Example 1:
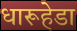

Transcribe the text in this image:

धारूहेडा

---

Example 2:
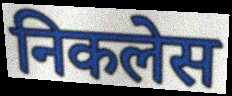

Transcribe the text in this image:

निकलेस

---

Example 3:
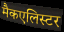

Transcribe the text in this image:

मैकएलिस्टर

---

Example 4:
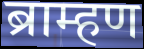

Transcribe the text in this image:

ब्राम्हण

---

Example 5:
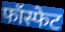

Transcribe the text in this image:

फॉस्फेट